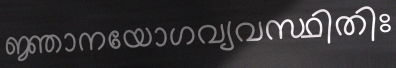
ജ്ഞാനയോഗവ്യവസ്ഥിതിഃ